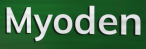
Myoden